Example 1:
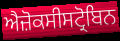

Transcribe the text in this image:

ਐਜ਼ੋਕਸੀਸਟ੍ਰੋਬਿਨ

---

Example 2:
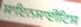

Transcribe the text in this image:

ਸਾਇਨਸਾਈਟਿਸ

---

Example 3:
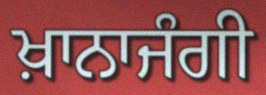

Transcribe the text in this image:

ਖ਼ਾਨਾਜੰਗੀ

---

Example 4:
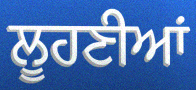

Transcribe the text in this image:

ਲੂਹਣੀਆਂ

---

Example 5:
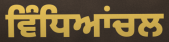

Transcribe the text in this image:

ਵਿੰਧਿਆਂਚਲ